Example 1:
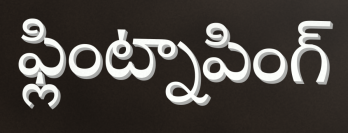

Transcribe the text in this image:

ఫ్లింట్నాపింగ్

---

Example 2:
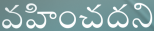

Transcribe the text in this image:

వహించదని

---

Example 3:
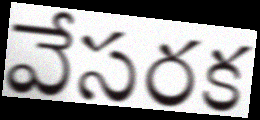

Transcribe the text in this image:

వేసరక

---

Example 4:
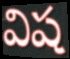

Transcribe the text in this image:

విష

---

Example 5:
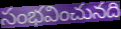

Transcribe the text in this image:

సంభవించునది